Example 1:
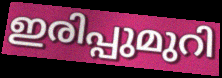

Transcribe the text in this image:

ഇരിപ്പുമുറി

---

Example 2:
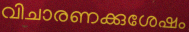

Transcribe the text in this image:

വിചാരണക്കുശേഷം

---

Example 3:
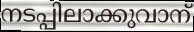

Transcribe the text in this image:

നടപ്പിലാക്കുവാന്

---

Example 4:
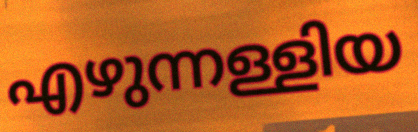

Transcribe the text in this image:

എഴുന്നള്ളിയ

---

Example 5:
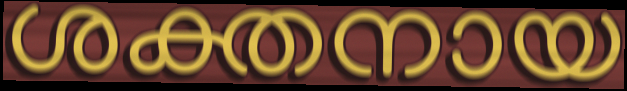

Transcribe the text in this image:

ശക്തനായ